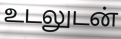
உடலுடன்